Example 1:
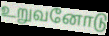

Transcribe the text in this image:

உறுவனோடு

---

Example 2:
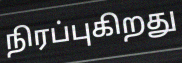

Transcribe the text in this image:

நிரப்புகிறது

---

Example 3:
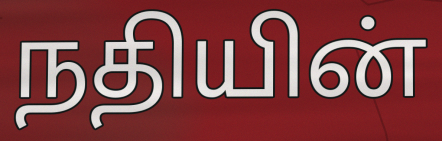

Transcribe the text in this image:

நதியின்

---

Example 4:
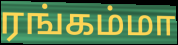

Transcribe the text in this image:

ரங்கம்மா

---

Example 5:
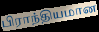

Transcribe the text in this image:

பிராந்தியமான